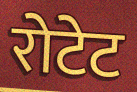
रोटेट